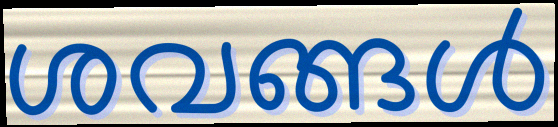
ശവങ്ങൾ